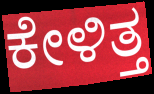
ಕೇಳಿತ್ತ